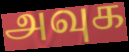
அவுக